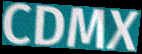
CDMX